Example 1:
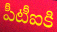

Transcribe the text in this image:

పీటీఐకి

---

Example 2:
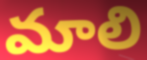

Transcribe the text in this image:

మాలి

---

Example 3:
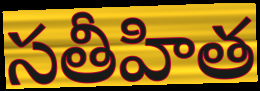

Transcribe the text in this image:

సతీహిత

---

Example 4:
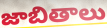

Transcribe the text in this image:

జాబితాలు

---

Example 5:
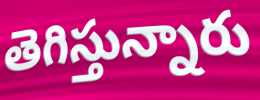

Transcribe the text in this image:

తెగిస్తున్నారు